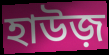
হাউজ়